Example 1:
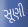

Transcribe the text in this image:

સૂણી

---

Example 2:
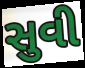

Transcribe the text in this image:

સુવી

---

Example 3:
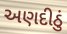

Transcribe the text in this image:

અણદીઠું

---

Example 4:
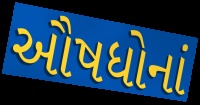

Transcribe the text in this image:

ઔષધોનાં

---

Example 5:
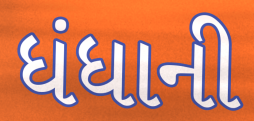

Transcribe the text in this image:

ધંધાની